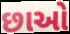
છાઓ